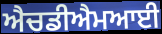
ਐਚਡੀਐਮਆਈ